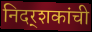
निदर्शकांची